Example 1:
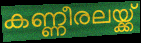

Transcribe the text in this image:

കണ്ണീരലയ്ക്ക്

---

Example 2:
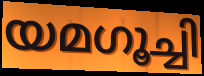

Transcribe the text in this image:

യമഗൂച്ചി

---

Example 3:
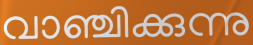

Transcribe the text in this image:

വാഞ്ചിക്കുന്നു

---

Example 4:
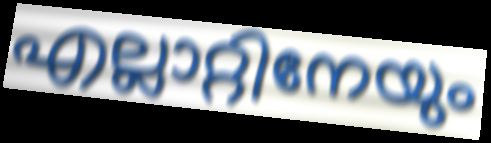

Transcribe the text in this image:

എല്ലാറ്റിനേയും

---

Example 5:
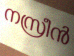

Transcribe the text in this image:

നസ്രീൻ